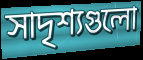
সাদৃশ্যগুলো